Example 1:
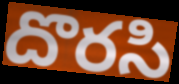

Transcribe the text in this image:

దొరసి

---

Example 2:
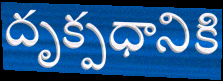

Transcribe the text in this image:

దృక్పధానికి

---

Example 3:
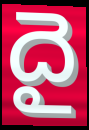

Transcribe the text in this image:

దై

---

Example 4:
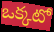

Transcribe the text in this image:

ఒక్కటో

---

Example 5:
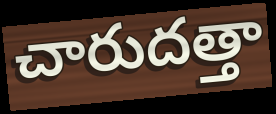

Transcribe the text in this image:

చారుదత్తా